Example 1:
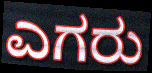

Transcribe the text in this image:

ಎಗರು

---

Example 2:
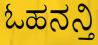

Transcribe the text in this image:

ಓಹನನ್ತಿ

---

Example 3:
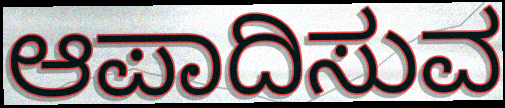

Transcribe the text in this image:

ಆಪಾದಿಸುವ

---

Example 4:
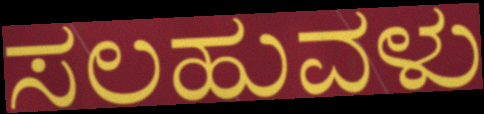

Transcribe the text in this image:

ಸಲಹುವಳು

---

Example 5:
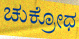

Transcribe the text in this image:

ಚುಕ್ರೋಧ